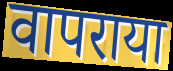
वापराया